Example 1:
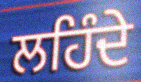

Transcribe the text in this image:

ਲਹਿੰਦੇ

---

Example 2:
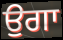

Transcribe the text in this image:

ਉਗਾ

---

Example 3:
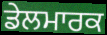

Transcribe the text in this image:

ਡੇਲਮਾਰਕ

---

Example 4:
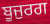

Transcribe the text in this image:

ਬੂਜੁਰਗ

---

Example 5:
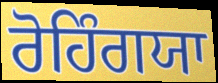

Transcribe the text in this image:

ਰੋਹਿੰਗਯਾ